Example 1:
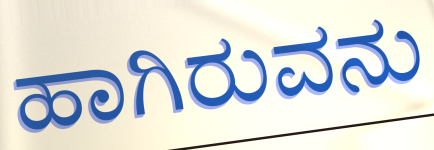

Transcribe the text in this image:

ಹಾಗಿರುವನು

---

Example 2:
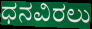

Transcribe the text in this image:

ಧನವಿರಲು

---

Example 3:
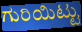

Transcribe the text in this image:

ಗುರಿಯಿಟ್ಟು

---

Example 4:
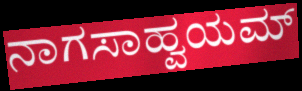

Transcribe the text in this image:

ನಾಗಸಾಹ್ವಯಮ್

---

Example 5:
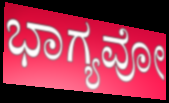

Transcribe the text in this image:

ಭಾಗ್ಯವೋ